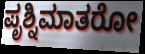
ಪೃಶ್ನಿಮಾತರೋ